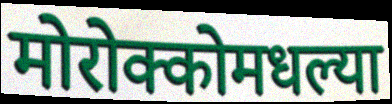
मोरोक्कोमधल्या